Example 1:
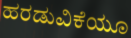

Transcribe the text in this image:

ಹರಡುವಿಕೆಯೂ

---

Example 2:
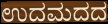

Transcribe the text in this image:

ಉದಮದದ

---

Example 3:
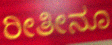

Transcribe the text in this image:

ರೀತೀನೂ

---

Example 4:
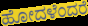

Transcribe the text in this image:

ಹೋದಳೆಂದರೆ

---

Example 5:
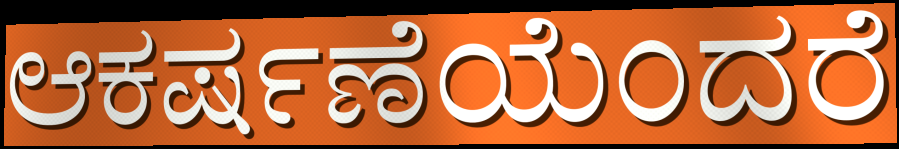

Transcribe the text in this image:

ಆಕರ್ಷಣೆಯೆಂದರೆ